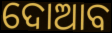
ଦୋଆବ